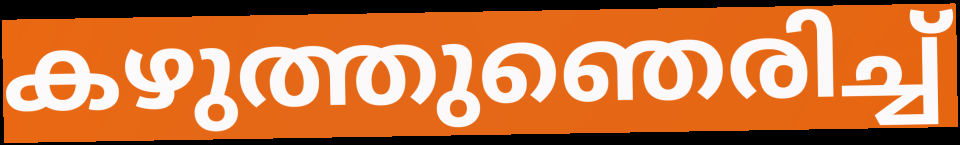
കഴുത്തുഞെരിച്ച്